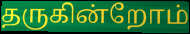
தருகின்றோம்